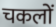
चकलों